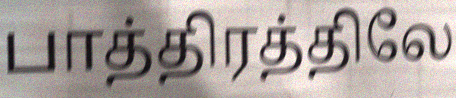
பாத்திரத்திலே